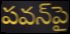
పవన్‌పై